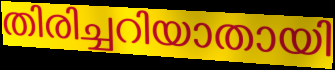
തിരിച്ചറിയാതായി